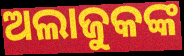
ଅଲାଜୁକଙ୍କ